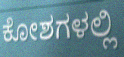
ಕೋಶಗಳಲ್ಲಿ